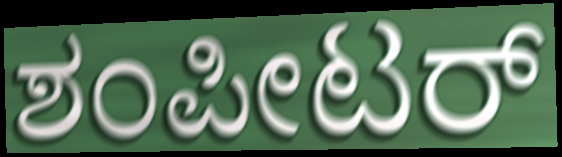
ಶಂಪೀಟರ್